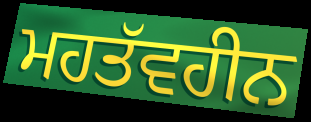
ਮਹਤੱਵਹੀਨ